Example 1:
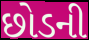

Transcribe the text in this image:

છોડની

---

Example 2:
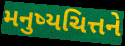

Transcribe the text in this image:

મનુષ્યચિત્તને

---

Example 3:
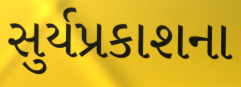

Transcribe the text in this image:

સુર્યપ્રકાશના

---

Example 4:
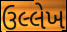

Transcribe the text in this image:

ઉલ્લેખ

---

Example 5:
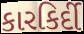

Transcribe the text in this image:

કારકિર્દી